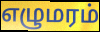
எழுமரம்